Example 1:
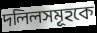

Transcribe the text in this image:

দলিলসমূহকে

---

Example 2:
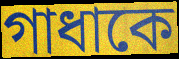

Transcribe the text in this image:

গাধাকে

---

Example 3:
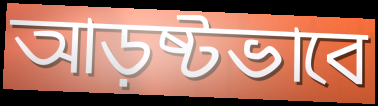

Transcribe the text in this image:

আড়ষ্টভাবে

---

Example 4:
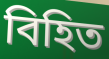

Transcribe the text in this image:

বিহিত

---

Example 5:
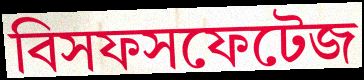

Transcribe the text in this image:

বিসফসফেটেজ